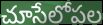
చూసేలోపల